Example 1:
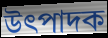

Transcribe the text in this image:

উৎপাদক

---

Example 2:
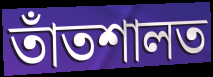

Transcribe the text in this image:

তাঁতশালত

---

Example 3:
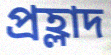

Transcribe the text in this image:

প্ৰহ্লাদ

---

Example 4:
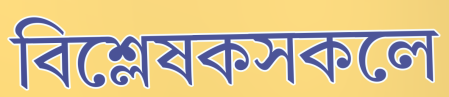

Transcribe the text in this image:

বিশ্লেষকসকলে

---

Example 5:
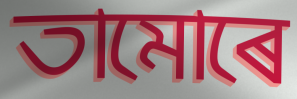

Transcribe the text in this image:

তামোৰে